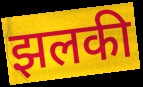
झलकी